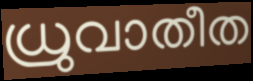
ധ്രുവാതീത